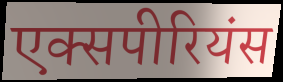
एक्सपीरियंस